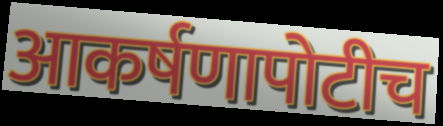
आकर्षणापोटीच